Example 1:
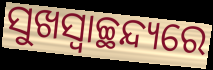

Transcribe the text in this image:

ସୁଖସ୍ଵାଚ୍ଛନ୍ଦ୍ୟରେ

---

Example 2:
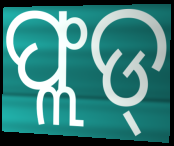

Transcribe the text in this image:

ଫ୍ଲଡ୍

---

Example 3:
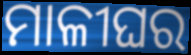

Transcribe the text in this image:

ମାଳୀଘର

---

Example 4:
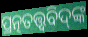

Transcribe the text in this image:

ପ୍ରତ୍ନତତ୍ତ୍ୱବିଦ୍‌ଙ୍କ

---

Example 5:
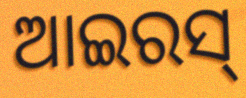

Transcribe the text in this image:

ଆଇରସ୍